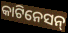
କାଟିନେସନ୍